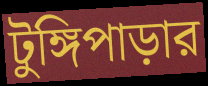
টুঙ্গিপাড়ার